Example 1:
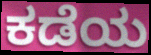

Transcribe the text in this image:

ಕಡೆಯ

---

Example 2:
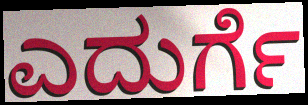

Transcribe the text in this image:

ಎದುರ್ಗೆ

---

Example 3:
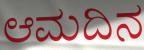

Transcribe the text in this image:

ಆಮದಿನ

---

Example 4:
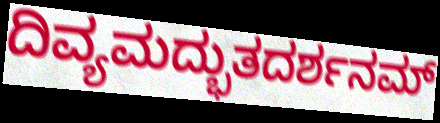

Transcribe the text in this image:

ದಿವ್ಯಮದ್ಭುತದರ್ಶನಮ್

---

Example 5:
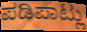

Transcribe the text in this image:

ಪಡಿಪಾಟ್ಲು